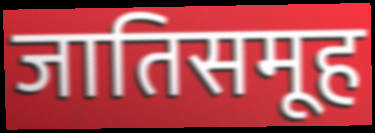
जातिसमूह